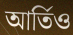
আর্তিও